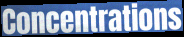
Concentrations